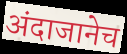
अंदाजानेच